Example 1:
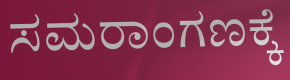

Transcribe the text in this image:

ಸಮರಾಂಗಣಕ್ಕೆ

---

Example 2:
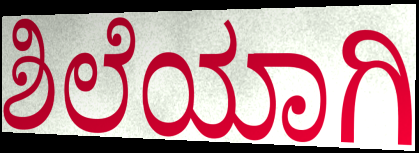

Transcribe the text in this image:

ಶಿಲೆಯಾಗಿ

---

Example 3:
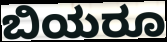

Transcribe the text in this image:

ಬಿಯರೂ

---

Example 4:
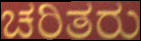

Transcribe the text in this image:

ಚರಿತರು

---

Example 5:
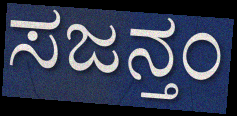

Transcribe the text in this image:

ಸಜನ್ತಂ